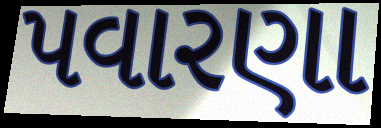
પવારણા